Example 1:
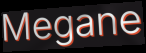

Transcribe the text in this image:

Megane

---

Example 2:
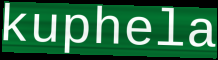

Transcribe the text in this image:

kuphela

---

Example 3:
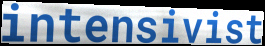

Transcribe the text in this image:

intensivist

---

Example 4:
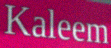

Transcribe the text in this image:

Kaleem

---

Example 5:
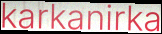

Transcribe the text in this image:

karkanirka